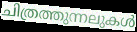
ചിത്രത്തുന്നലുകൾ